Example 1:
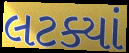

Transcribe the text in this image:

લટક્યાં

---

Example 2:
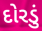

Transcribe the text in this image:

દોરડું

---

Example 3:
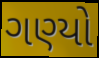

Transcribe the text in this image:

ગણ્યો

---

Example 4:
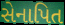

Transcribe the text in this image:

સેનાપિત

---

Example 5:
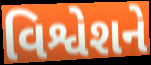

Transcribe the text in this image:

વિશ્વેશને